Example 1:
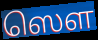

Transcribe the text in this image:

ஸௌ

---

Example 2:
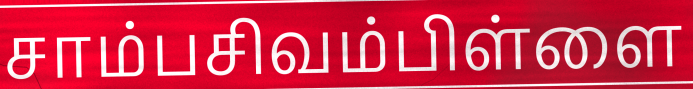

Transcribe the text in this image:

சாம்பசிவம்பிள்ளை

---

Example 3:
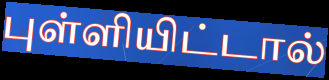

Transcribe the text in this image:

புள்ளியிட்டால்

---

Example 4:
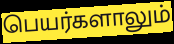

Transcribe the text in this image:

பெயர்களாலும்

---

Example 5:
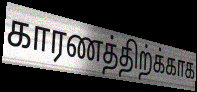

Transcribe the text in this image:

காரணத்திற்க்காக